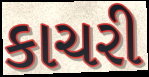
કાચરી